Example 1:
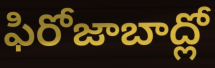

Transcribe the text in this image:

ఫిరోజాబాద్లో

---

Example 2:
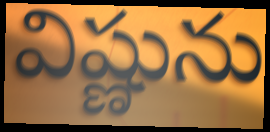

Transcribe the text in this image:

విష్ణును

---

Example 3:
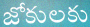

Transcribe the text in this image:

జోకులకు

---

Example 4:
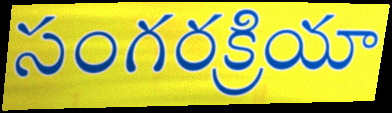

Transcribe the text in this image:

సంగరక్రియా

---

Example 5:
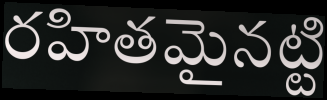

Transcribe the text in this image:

రహితమైనట్టి